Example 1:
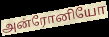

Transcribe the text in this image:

அன்ரோனியோ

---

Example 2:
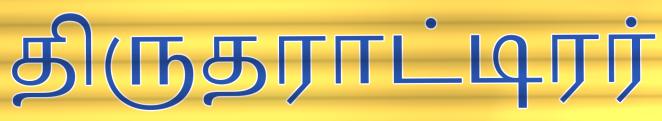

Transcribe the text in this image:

திருதராட்டிரர்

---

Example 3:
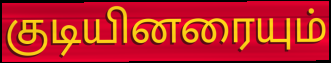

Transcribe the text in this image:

குடியினரையும்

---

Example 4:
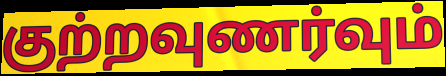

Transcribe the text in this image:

குற்றவுணர்வும்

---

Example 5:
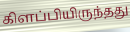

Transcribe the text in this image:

கிளப்பியிருந்தது